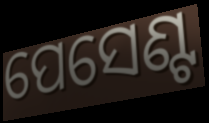
ପେସେଣ୍ଟ